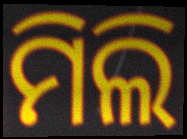
ମିଲି